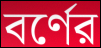
বর্ণের